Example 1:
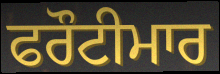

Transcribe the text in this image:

ਫਰੌਟੀਮਾਰ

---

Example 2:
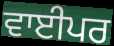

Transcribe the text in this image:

ਵਾਈਪਰ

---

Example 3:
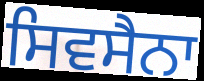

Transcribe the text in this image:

ਸਿਵਸੈਨਾ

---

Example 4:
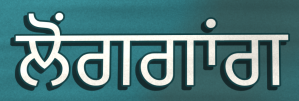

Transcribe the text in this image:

ਲੋਂਗਗਾਂਗ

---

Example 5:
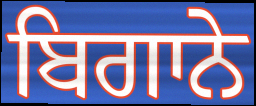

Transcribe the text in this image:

ਬਿਗਾਨੇ